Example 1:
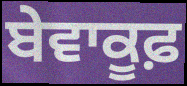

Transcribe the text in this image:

ਬੇਵਾਕੂਫ਼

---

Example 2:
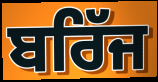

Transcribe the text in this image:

ਬਰਿੱਜ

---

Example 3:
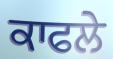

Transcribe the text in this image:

ਕਾਫਲੇ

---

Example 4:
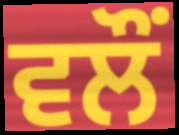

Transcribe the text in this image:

ਵਲੌੰ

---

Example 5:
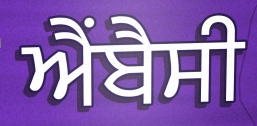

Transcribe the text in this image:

ਐਂਬੈਸੀ